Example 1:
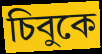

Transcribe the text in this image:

চিবুকে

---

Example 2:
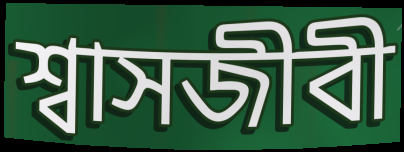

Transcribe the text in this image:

শ্বাসজীবী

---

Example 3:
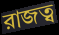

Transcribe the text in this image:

রাজত্ব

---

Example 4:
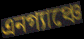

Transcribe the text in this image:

এনগ্যাঞ্চে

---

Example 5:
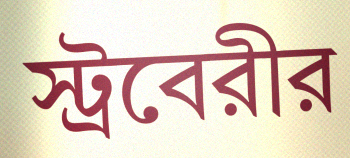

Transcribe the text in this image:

স্ট্রবেরীর